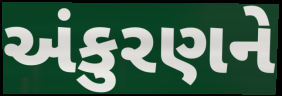
અંકુરણને